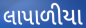
લાપાળીયા